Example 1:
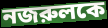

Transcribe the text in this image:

নজরুলকে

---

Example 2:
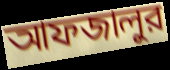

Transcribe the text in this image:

আফজালুর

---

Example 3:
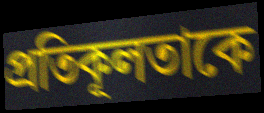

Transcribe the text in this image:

প্রতিকূলতাকে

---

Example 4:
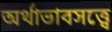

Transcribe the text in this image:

অর্থাভাবসত্ত্বে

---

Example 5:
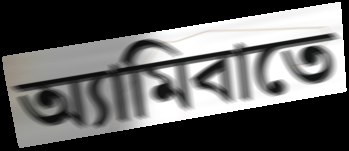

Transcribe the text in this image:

অ্যামিবাতে